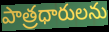
పాత్రధారులను